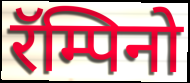
रॅम्पिनो